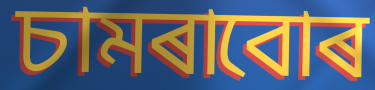
চামৰাবোৰ